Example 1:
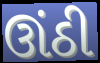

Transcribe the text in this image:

ઊંઠી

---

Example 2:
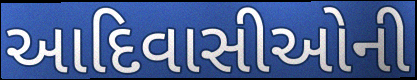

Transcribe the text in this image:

આદિવાસીઓની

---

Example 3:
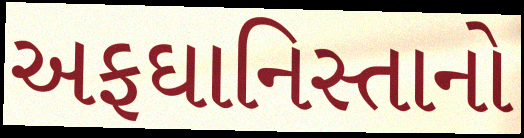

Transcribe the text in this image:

અફઘાનિસ્તાનો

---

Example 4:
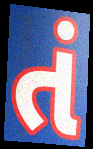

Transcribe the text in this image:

તં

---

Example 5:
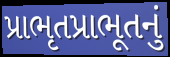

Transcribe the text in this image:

પ્રાભૃતપ્રાભૂતનું